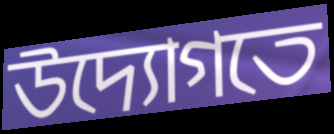
উদ্যোগতে